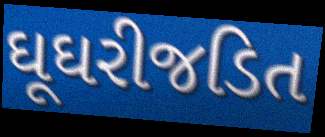
ઘૂઘરીજડિત